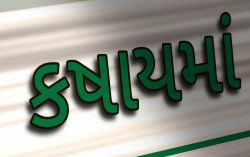
કષાયમાં